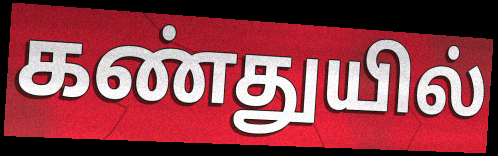
கண்துயில்